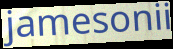
jamesonii